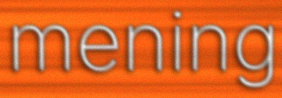
mening